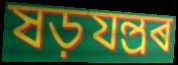
ষড়যন্ত্ৰৰ